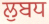
ਲੁਬਧ